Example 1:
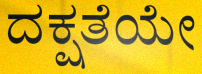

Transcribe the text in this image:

ದಕ್ಷತೆಯೇ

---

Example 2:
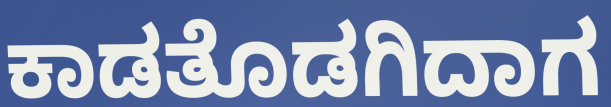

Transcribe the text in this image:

ಕಾಡತೊಡಗಿದಾಗ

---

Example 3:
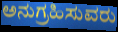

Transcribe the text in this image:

ಅನುಗ್ರಹಿಸುವರು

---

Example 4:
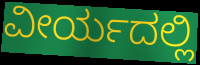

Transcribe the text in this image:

ವೀರ್ಯದಲ್ಲಿ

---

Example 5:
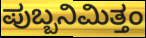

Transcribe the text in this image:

ಪುಬ್ಬನಿಮಿತ್ತಂ